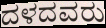
ದಳದವರು